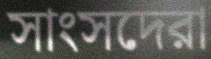
সাংসদেরা